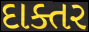
દાક્તર